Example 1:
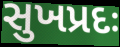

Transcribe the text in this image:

સુખપ્રદઃ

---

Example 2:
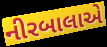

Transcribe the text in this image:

નીરબાલાએ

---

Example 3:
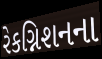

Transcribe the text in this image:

રેકગ્નિશનના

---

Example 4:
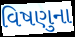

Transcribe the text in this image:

વિષણુના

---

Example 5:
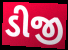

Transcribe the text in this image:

ડીજી